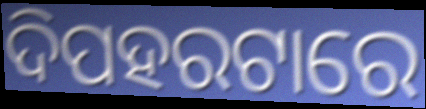
ଦିପହରଟାରେ